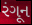
રંગૂન